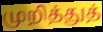
முறித்துத்